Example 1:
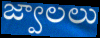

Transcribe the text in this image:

జ్వాలలు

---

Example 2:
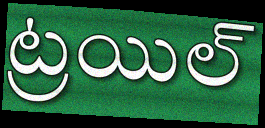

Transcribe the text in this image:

ట్రయిల్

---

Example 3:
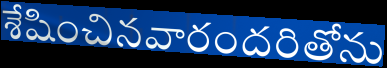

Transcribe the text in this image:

శేషించినవారందరితోను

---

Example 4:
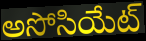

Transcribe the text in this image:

అసోసియేట్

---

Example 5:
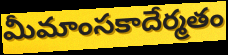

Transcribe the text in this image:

మీమాంసకాదేర్మతం